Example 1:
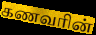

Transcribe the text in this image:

கணவரின்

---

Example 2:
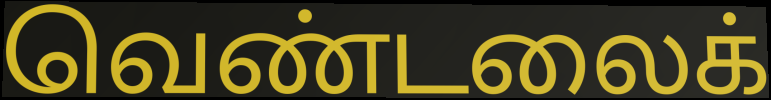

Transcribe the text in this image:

வெண்டலைக்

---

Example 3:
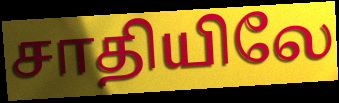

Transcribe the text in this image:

சாதியிலே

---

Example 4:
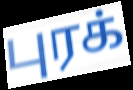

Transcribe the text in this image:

புரக்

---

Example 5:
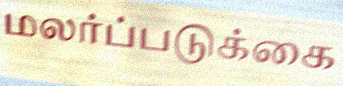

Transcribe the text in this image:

மலர்ப்படுக்கை